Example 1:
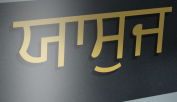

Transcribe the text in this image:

ਯਾਸੁਜ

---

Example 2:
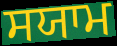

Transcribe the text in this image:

ਸਯਾਮ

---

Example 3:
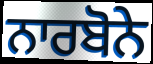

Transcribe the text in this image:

ਨਾਰਬੋਨੇ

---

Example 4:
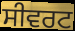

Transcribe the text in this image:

ਸੀਵਰਟ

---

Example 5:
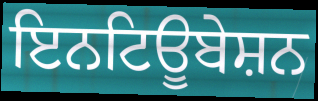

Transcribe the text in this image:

ਇਨਟਿਊਬੇਸ਼ਨ